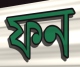
ফন